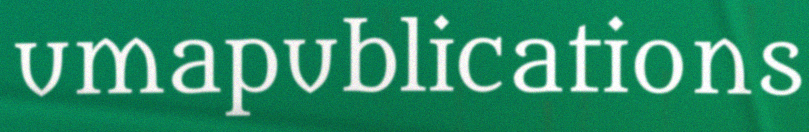
umapublications